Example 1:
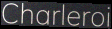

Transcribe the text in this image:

Charleroi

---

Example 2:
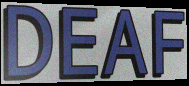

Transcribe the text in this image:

DEAF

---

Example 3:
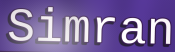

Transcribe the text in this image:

Simran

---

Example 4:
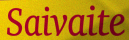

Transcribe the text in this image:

Saivaite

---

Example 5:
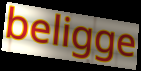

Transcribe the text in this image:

beligge